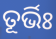
ତୂର୍ଭିଃ